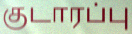
குடாரப்பு